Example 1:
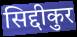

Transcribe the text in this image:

सिद्दीकुर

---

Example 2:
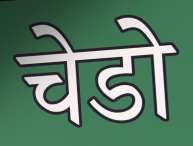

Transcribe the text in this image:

चेडो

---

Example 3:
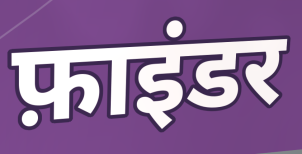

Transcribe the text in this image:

फ़ाइंडर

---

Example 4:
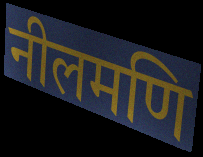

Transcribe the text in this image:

नीलमणि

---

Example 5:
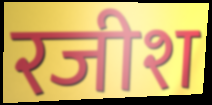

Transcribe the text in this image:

रजीश